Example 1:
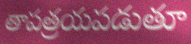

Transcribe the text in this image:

తాపత్రయపడుతూ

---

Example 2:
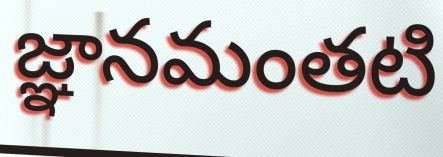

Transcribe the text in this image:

జ్ఞానమంతటి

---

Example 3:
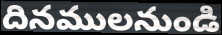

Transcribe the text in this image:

దినములనుండి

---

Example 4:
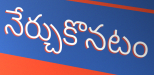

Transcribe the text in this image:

నేర్చుకొనటం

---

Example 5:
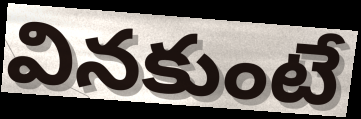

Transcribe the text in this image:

వినకుంటే